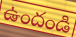
ఉందండి